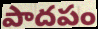
పాదపం